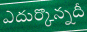
ఎదుర్కొన్నదీ